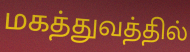
மகத்துவத்தில்